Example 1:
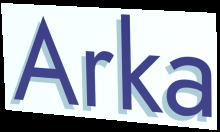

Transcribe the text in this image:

Arka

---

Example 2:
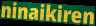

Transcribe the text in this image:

ninaikiren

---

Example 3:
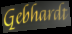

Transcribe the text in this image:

Gebhardt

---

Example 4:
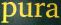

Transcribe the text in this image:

pura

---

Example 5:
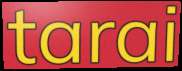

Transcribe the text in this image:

tarai